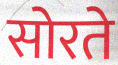
सोरते